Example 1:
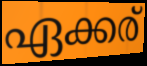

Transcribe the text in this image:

ഏക്കര്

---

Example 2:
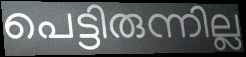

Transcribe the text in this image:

പെട്ടിരുന്നില്ല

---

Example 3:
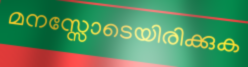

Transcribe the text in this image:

മനസ്സോടെയിരിക്കുക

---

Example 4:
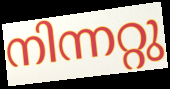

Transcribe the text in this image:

നിന്നറ്റു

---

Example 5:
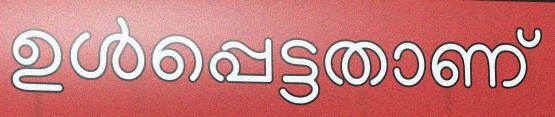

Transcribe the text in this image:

ഉൾപ്പെട്ടതാണ്